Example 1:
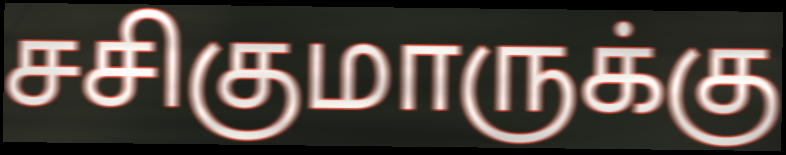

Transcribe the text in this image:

சசிகுமாருக்கு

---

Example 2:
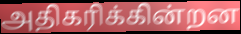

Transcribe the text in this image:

அதிகரிக்கின்றன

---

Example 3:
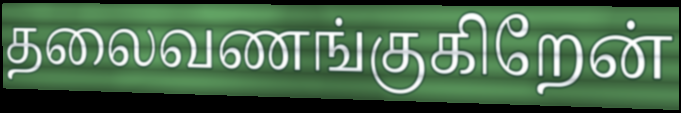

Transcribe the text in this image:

தலைவணங்குகிறேன்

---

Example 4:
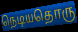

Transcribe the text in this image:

நெடியதொரு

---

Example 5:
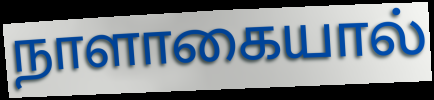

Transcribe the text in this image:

நாளாகையால்